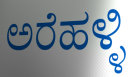
ಅರೆಹಳ್ಳಿ